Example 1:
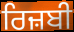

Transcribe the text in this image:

ਰਿਜ਼ਬੀ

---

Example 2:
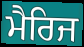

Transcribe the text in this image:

ਮੈਰਿਜ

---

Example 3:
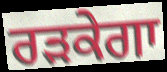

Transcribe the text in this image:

ਰੜਕੇਗਾ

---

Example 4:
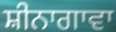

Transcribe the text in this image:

ਸ਼ੀਨਾਗਾਵਾ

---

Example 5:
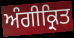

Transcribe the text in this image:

ਅੰਗੀਕ੍ਰਿਤ